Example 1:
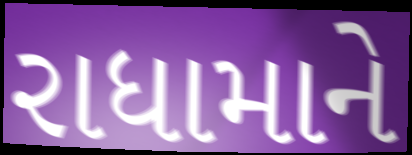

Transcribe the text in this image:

રાધામાને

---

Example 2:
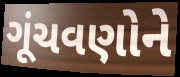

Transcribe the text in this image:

ગૂંચવણોને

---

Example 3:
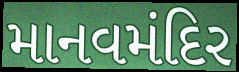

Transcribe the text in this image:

માનવમંદિર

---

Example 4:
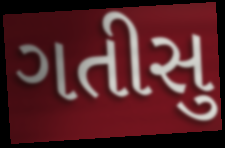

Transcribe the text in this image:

ગતીસુ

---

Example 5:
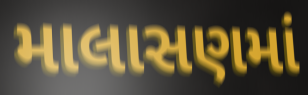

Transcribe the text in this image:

માલાસણમાં